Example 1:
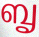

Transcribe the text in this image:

ബൃ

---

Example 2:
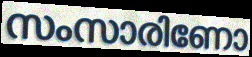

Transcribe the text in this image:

സംസാരിണോ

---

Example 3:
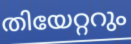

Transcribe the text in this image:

തിയേറ്ററും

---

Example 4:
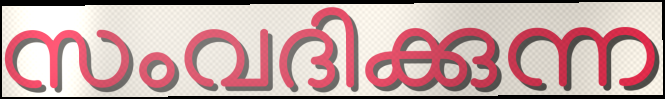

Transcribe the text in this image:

സംവദിക്കുന്ന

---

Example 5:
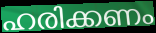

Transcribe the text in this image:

ഹരിക്കണം